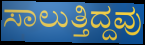
ಸಾಲುತ್ತಿದ್ದವು